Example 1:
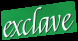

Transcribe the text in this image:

exclave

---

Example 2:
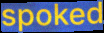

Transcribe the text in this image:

spoked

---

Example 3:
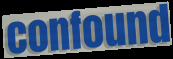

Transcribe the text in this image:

confound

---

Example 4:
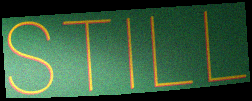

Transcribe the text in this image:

STILL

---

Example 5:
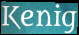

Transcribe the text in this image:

Kenig